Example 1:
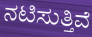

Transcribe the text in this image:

ನಟಿಸುತ್ತಿವೆ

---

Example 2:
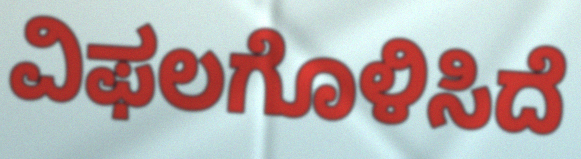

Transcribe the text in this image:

ವಿಫಲಗೊಳಿಸಿದೆ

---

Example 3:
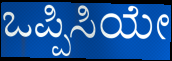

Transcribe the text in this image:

ಒಪ್ಪಿಸಿಯೇ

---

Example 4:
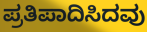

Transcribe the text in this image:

ಪ್ರತಿಪಾದಿಸಿದವು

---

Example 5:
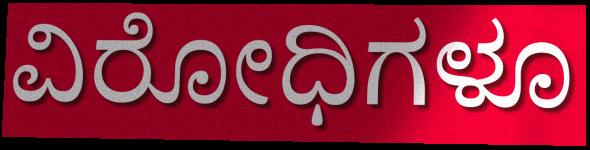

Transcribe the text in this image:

ವಿರೋಧಿಗಳೂ